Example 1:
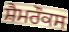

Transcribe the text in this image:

ਸ਼ੈਮਰੌਕਸ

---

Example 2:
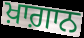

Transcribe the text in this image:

ਖ਼ਾਗ਼ਾਨ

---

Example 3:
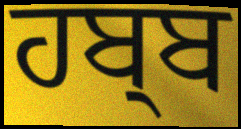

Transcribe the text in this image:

ਹਬ੍ਬ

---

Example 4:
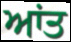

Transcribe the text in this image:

ਆਂਤ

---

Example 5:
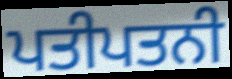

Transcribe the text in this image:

ਪਤੀਪਤਨੀ